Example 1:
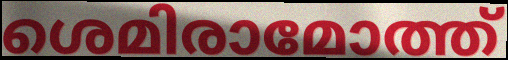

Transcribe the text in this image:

ശെമിരാമോത്ത്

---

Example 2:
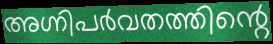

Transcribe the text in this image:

അഗ്നിപർവതത്തിന്റെ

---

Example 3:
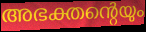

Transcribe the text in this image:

അഭക്തന്റെയും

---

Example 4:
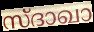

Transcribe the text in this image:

സ്ദാഖാ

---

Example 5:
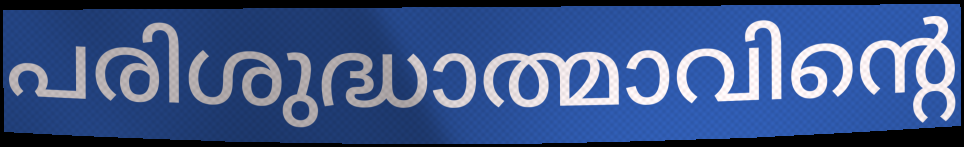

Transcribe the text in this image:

പരിശുദ്ധാത്മാവിന്റെ